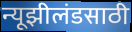
न्यूझीलंडसाठी